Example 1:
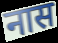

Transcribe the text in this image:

नास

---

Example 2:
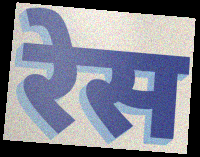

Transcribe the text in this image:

रेस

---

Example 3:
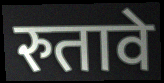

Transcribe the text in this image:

रुतावे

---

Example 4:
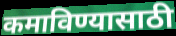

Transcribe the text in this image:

कमाविण्यासाठी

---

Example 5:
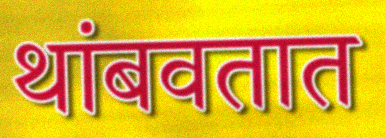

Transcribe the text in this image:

थांबवतात